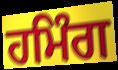
ਹਮਿੰਗ